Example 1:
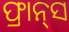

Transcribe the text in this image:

ଫ୍ରାନ୍‍ସ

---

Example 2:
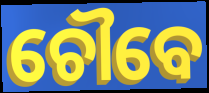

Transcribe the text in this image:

ଚୌବେ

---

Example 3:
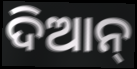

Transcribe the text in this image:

ଦିଆନ୍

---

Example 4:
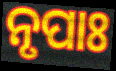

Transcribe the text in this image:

ନୃପାଃ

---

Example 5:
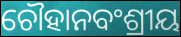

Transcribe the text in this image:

ଚୌହାନବଂଶ୍ରୀୟ